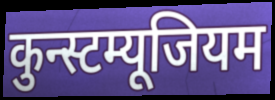
कुन्स्टम्यूजियम